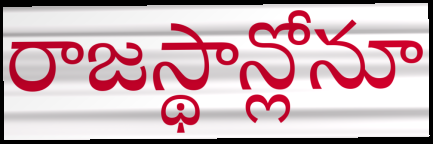
రాజస్థాన్లోనూ